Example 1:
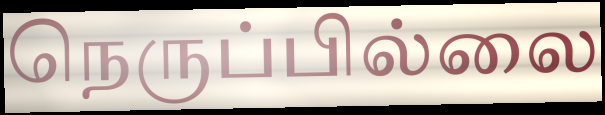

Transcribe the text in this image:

நெருப்பில்லை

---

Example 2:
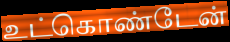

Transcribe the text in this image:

உட்கொண்டேன்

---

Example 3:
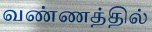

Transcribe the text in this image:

வண்ணத்தில்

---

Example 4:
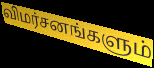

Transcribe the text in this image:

விமர்சனங்களும்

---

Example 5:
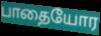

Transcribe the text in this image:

பாதையோர